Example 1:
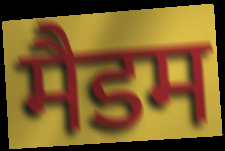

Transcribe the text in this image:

मैडम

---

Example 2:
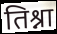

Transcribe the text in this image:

तिश्ना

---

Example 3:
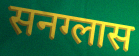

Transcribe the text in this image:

सनग्लास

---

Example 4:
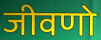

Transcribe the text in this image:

जीवणो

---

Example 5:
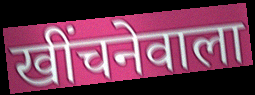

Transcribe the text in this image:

खींचनेवाला